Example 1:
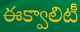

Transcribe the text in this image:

ఈక్వాలిటీ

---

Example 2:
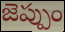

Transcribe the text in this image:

జెప్పుం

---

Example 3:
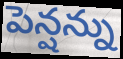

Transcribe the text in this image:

పెన్షన్ను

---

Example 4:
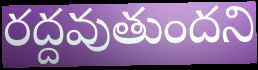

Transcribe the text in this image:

రద్దవుతుందని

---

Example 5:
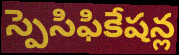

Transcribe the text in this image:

స్పెసిఫికేషన్ల